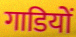
गाडियों